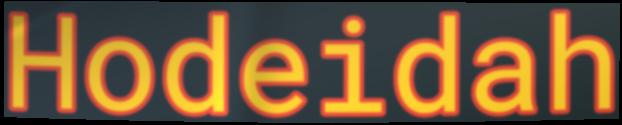
Hodeidah